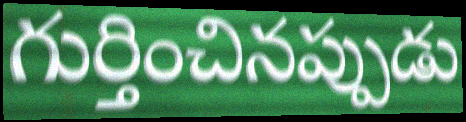
గుర్తించినప్పుడు